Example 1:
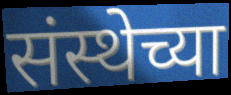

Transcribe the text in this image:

संस्थेच्या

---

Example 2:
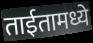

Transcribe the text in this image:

ताईतामध्ये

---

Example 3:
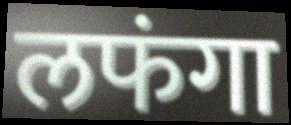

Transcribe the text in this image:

लफंगा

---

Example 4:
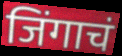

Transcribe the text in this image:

जिंगाचं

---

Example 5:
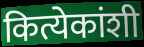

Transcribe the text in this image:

कित्येकांशी